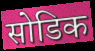
सोडिक